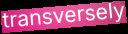
transversely